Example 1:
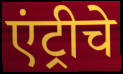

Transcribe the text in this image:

एंट्रीचे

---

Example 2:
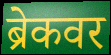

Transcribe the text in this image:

ब्रेकवर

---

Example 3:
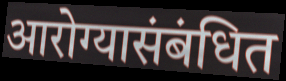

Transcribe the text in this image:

आरोग्यासंबंधित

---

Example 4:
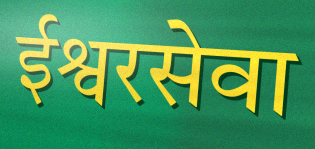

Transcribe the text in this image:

ईश्वरसेवा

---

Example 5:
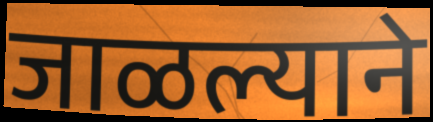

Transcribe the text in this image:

जाळल्याने